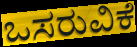
ಒಸರುವಿಕೆ